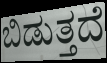
ಬಿಡುತ್ತದೆ